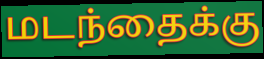
மடந்தைக்கு